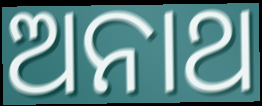
ଅନାଥ